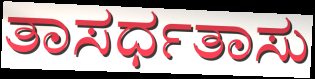
ತಾಸರ್ಧತಾಸು